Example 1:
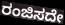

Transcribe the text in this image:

ರಂಜಿಸದೇ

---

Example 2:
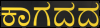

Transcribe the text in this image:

ಕಾಗದದ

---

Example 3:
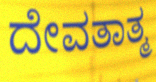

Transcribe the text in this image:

ದೇವತಾತ್ಮ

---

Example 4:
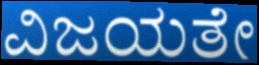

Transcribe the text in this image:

ವಿಜಯತೇ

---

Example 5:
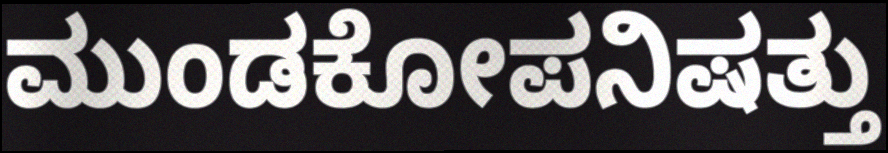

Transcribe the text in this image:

ಮುಂಡಕೋಪನಿಷತ್ತು